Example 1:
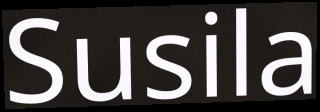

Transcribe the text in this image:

Susila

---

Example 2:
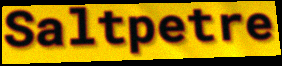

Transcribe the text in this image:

Saltpetre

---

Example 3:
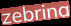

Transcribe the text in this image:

zebrina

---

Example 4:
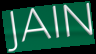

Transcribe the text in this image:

JAIN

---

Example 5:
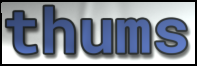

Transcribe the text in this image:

thums